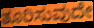
ತೂರಿಸುವುದೇ